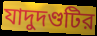
যাদুদণ্ডটির